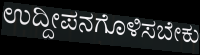
ಉದ್ದೀಪನಗೊಳಿಸಬೇಕು